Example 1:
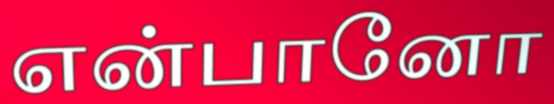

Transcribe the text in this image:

என்பானோ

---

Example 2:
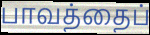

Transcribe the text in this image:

பாவத்தைப்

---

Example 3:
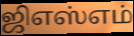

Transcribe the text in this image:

ஜிஎஸ்எம்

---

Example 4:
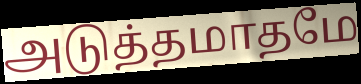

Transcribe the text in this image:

அடுத்தமாதமே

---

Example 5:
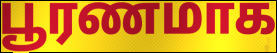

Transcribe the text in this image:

பூரணமாக